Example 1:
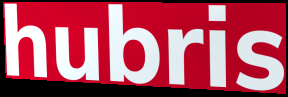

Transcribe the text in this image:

hubris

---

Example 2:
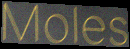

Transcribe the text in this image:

Moles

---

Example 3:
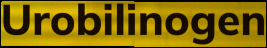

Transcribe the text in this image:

Urobilinogen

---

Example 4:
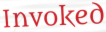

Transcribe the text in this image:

Invoked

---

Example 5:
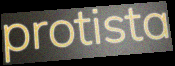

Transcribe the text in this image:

protista